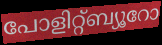
പോളിറ്റ്ബ്യൂറോ